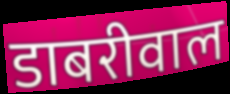
डाबरीवाल